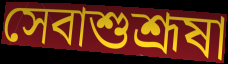
সেবাশুশ্রূষা